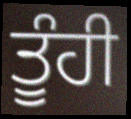
ਤੂੰਹੀ